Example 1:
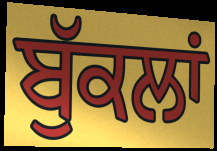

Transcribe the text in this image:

ਬੁੱਕਲਾਂ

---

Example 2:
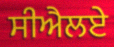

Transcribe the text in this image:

ਸੀਐਲਏ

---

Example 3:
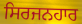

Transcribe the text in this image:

ਸਿਰਜਨਹਾਰ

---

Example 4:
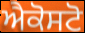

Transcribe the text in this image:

ਐਕੋਸਟੋ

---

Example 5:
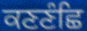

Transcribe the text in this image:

ਕਣਣੰਛਿ